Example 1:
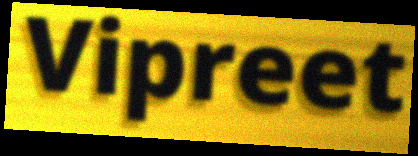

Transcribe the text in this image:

Vipreet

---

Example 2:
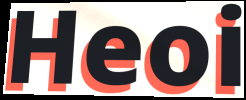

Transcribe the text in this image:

Heoi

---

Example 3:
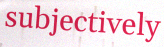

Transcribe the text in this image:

subjectively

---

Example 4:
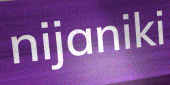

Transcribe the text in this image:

nijaniki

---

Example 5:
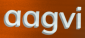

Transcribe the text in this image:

aagvi